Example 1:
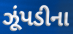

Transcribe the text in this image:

ઝૂંપડીના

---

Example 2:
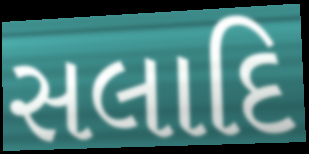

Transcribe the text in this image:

સલાદિ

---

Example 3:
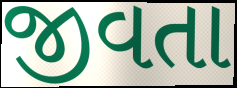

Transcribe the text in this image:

જીવતા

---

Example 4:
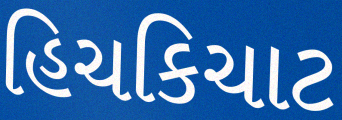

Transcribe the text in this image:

હિચકિચાટ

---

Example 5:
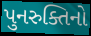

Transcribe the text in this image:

પુનરુક્તિનો